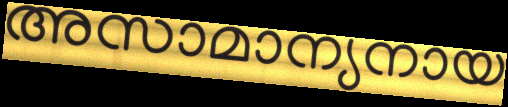
അസാമാന്യനായ